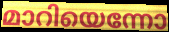
മാറിയെന്നോ